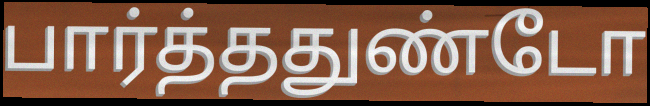
பார்த்ததுண்டோ